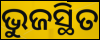
ଭୁଜସ୍ଥିତ